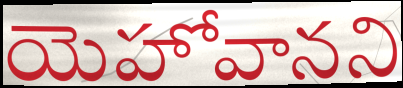
యెహోవానని